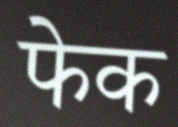
फेक